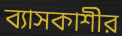
ব্যাসকাশীর